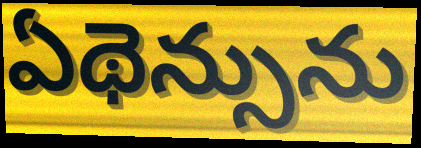
ఏథెన్సును